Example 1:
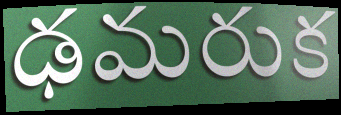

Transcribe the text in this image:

ఢమరుక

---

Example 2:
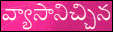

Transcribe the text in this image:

వ్యాసానిచ్చిన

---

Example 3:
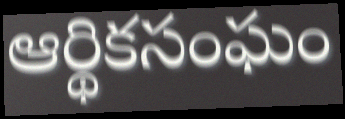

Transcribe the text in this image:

ఆర్థికసంఘం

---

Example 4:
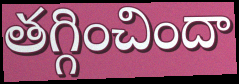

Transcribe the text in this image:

తగ్గించిందా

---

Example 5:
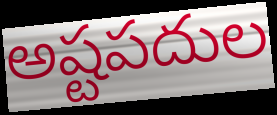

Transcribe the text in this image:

అష్టపదుల